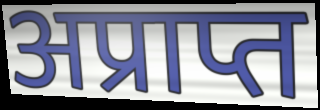
अप्राप्त